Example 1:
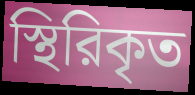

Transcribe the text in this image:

স্থিরিকৃত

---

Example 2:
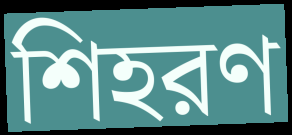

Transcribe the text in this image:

শিহরণ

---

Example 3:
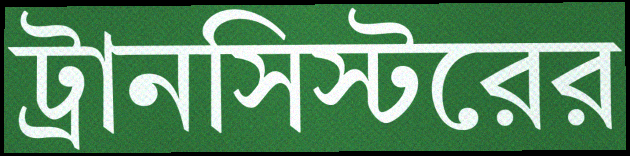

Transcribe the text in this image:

ট্রানসিস্টরের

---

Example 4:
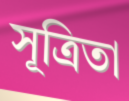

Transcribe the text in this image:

সূত্রিতা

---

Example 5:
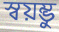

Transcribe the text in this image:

স্বয়ম্ভু